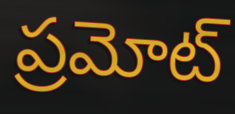
ప్రమోట్